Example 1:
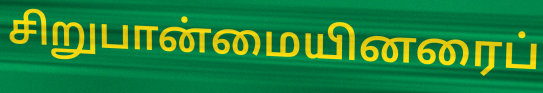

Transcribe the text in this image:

சிறுபான்மையினரைப்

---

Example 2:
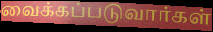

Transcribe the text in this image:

வைக்கப்படுவார்கள்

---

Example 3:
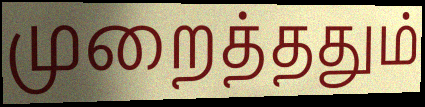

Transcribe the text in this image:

முறைத்ததும்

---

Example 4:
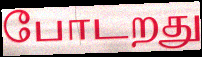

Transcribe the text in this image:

போடறது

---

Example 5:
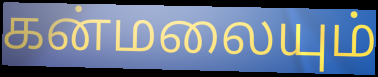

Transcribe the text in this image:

கன்மலையும்